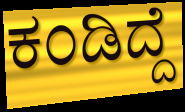
ಕಂಡಿದ್ದೆ